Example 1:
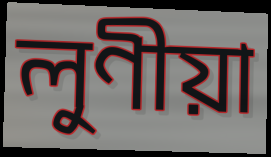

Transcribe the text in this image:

লুণীয়া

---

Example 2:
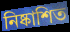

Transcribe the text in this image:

নিষ্কাশিত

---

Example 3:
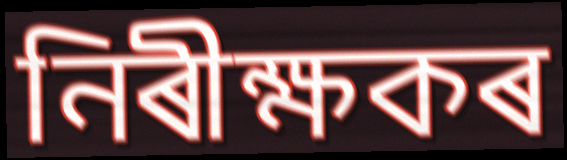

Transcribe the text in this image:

নিৰীক্ষকৰ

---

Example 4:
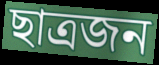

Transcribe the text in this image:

ছাত্ৰজন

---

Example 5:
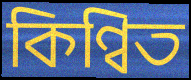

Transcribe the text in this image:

কিণ্বিত